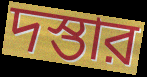
দস্তার